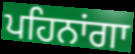
ਪਹਿਨਾਂਗਾ